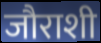
जौराशी